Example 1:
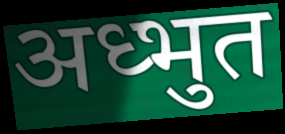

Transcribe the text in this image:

अध्भुत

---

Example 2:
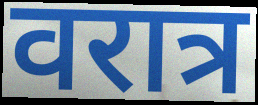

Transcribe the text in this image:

वरात्र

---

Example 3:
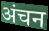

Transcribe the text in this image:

अंचन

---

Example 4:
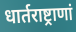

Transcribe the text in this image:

धार्तराष्ट्राणां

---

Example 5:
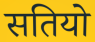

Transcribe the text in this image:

सतियो